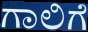
ಗಾಲಿಗೆ